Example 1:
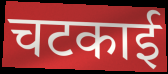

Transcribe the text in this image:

चटकाई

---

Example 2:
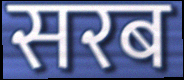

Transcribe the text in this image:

सरब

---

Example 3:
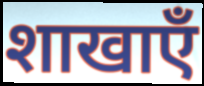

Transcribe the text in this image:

शाखाएँ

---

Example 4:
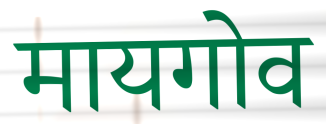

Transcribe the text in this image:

मायगोव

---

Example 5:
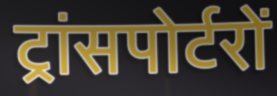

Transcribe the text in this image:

ट्रांसपोर्टरों